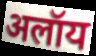
अलॉय